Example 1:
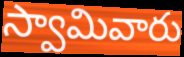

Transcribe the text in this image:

స్వామివారు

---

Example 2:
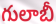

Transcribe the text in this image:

గులాబీ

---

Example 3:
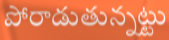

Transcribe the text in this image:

పోరాడుతున్నట్టు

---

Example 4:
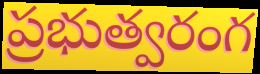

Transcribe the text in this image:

ప్రభుత్వరంగ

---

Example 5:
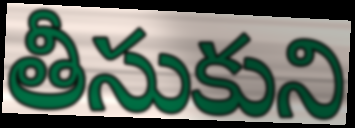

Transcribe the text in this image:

తీసుకుని